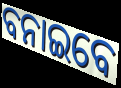
ବନାଇବେ